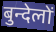
बुन्देलों